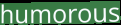
humorous